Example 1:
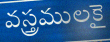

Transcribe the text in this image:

వస్త్రములకై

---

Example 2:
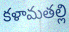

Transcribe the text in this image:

కళామతల్లి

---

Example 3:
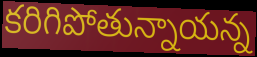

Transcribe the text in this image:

కరిగిపోతున్నాయన్న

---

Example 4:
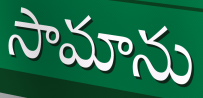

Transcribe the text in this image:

సామాను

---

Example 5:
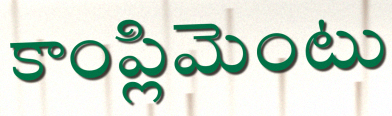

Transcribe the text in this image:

కాంప్లిమెంటు